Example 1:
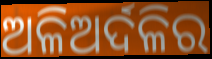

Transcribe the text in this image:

ଅଳିଅର୍ଦଳିର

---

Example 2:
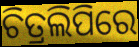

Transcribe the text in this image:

ଚିତ୍ରଲିପିରେ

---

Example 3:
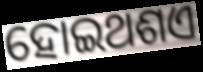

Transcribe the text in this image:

ହୋଇଥଶଏ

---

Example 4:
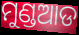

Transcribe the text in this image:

ମୁଣ୍ଡଆଡ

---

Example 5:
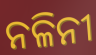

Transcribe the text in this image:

ନଳିନୀ